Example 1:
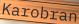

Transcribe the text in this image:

Karobran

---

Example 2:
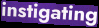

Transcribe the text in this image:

instigating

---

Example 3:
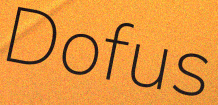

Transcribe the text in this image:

Dofus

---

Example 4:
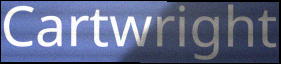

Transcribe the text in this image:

Cartwright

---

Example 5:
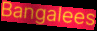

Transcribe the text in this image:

Bangalees